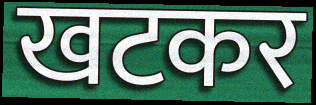
खटकर